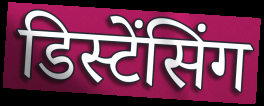
डिस्टेंसिंग